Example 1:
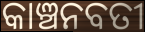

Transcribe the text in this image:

କାଞ୍ଚନବତୀ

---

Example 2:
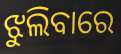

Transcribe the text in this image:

ଝୁଲିବାରେ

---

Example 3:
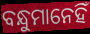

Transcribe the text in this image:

ବନ୍ଧୁମାନେହିଁ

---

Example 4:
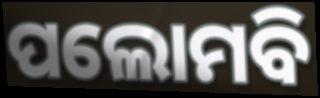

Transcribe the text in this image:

ପଲୋମବି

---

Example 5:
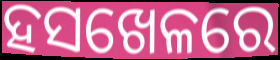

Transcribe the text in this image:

ହସଖେଳରେ